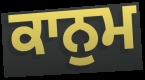
ਕਾਨੁਮ